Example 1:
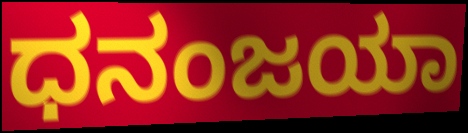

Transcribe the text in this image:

ಧನಂಜಯಾ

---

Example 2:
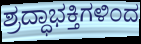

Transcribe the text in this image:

ಶ್ರದ್ಧಾಭಕ್ತಿಗಳಿಂದ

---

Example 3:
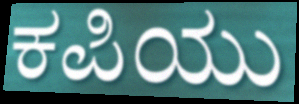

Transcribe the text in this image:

ಕಪಿಯು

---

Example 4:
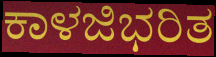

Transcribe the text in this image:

ಕಾಳಜಿಭರಿತ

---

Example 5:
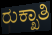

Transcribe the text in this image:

ರುಕ್ಖಾತಿ